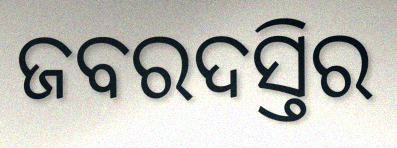
ଜବରଦସ୍ତିର